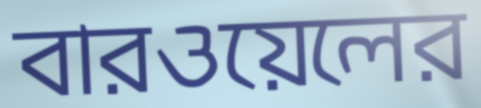
বারওয়েলের